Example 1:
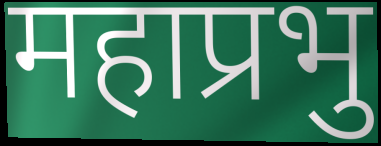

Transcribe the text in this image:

महाप्रभु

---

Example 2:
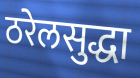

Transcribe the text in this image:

ठरेलसुद्धा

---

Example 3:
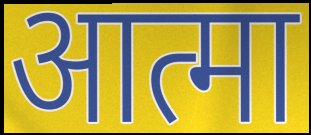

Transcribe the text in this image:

आत्मा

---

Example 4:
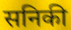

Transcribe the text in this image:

सनिकी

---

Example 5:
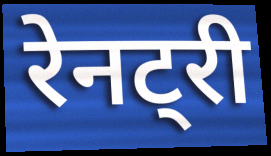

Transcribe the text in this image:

रेनट्री